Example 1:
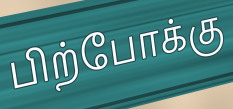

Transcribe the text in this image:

பிற்போக்கு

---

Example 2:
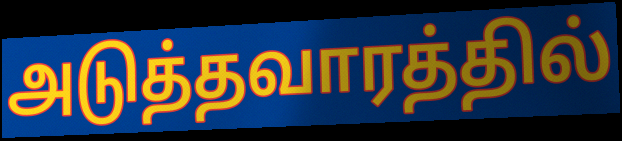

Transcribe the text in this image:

அடுத்தவாரத்தில்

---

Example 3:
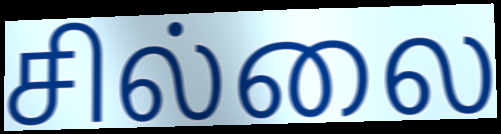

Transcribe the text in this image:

சில்லை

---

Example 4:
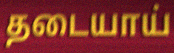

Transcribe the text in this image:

தடையாய்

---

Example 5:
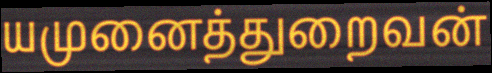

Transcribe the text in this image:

யமுனைத்துறைவன்